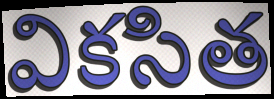
వికసిత